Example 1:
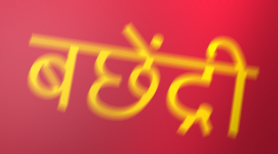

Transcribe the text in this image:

बछेंद्री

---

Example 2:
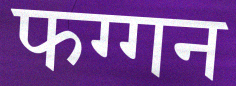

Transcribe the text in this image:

फग्‍गन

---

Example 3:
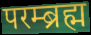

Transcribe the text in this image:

परम्ब्रह्म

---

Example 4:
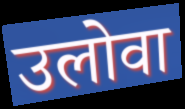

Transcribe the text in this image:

उलोवा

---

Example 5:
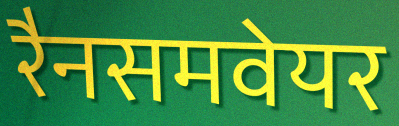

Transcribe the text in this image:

रैनसमवेयर